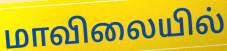
மாவிலையில்